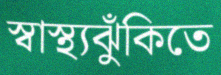
স্বাস্থ্যঝুঁকিতে